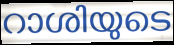
റാശിയുടെ